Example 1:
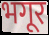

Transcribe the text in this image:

भगूर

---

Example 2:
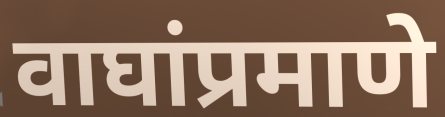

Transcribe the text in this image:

वाघांप्रमाणे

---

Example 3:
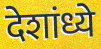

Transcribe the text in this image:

देशांध्ये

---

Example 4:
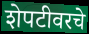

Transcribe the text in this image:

शेपटीवरचे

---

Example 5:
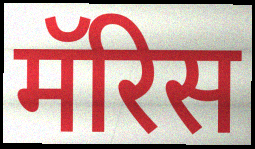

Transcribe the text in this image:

मॅरिस